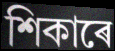
শিকাৰে